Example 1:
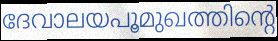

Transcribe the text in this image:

ദേവാലയപൂമുഖത്തിന്റെ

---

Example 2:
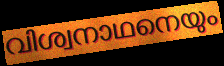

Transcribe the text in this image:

വിശ്വനാഥനെയും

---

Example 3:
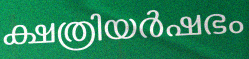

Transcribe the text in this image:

ക്ഷത്രിയർഷഭം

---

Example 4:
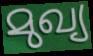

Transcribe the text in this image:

മുഖ്യ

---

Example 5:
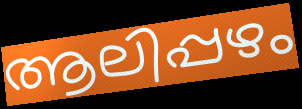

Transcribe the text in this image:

ആലിപ്പഴം